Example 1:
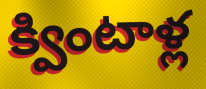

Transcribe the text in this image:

క్వింటాళ్ల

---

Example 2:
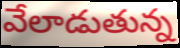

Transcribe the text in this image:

వేలాడుతున్న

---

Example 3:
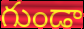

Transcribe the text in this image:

గుండా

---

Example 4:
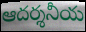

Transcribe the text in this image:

ఆదర్శనీయ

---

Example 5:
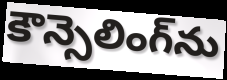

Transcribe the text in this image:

కౌన్సెలింగ్‌ను